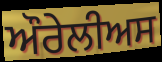
ਔਰੇਲੀਅਸ